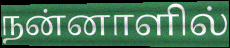
நன்னாளில்